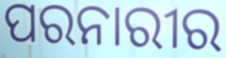
ପରନାରୀର